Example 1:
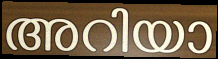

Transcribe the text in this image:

അറിയാ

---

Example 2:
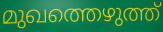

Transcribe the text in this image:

മുഖത്തെഴുത്ത്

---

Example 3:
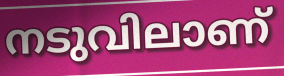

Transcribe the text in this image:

നടുവിലാണ്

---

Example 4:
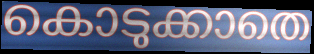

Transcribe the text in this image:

കൊടുക്കാതെ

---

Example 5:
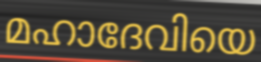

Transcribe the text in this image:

മഹാദേവിയെ